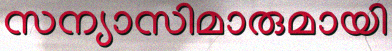
സന്യാസിമാരുമായി